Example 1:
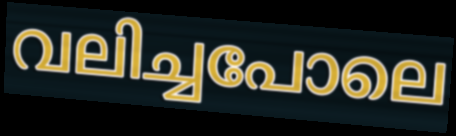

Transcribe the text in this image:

വലിച്ചപോലെ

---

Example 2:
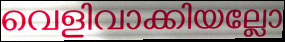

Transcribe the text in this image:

വെളിവാക്കിയല്ലോ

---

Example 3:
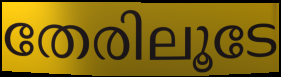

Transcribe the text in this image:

തേരിലൂടേ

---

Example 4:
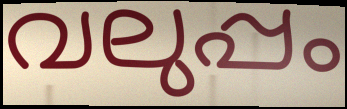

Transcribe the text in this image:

വലുപ്പം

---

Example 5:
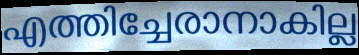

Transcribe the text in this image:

എത്തിച്ചേരാനാകില്ല